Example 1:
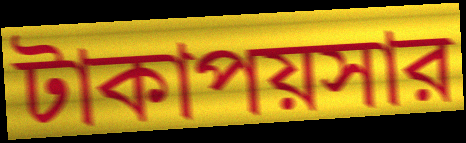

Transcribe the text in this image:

টাকাপয়সার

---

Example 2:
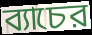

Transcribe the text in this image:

ব্যাচের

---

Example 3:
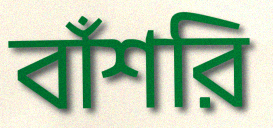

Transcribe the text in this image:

বাঁশরি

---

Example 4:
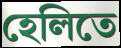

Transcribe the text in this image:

হেলিতে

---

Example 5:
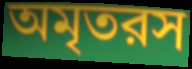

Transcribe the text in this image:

অমৃতরস